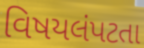
વિષયલંપટતા